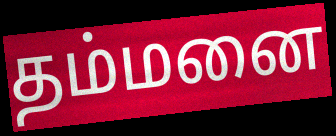
தம்மனை